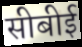
सीबीई